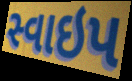
સ્વાઇપ